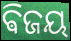
ଵିଜୟ